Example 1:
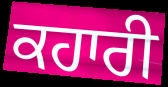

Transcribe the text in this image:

ਕਹਾਰੀ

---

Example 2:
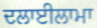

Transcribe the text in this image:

ਦਲਾਈਲਾਮਾ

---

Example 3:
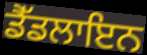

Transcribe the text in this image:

ਡੈੱਡਲਾਇਨ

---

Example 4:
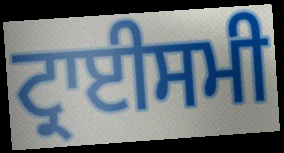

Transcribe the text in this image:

ਟ੍ਰਾਈਸਮੀ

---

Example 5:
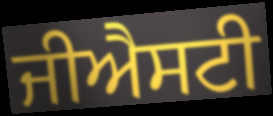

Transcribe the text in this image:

ਜੀਐਸਟੀ